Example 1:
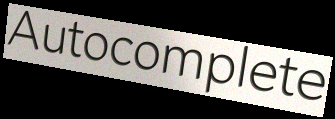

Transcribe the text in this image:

Autocomplete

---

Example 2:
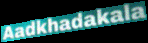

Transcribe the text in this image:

Aadkhadakala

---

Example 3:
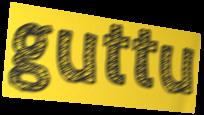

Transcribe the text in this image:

guttu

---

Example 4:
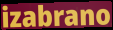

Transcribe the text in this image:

izabrano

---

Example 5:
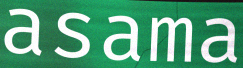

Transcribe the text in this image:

asama